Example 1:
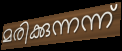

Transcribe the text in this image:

മരിക്കുന്നന്ന്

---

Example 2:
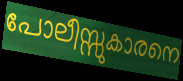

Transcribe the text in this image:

പോലീസ്സുകാരനെ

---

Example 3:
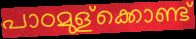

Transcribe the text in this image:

പാഠമുള്ക്കൊണ്ട്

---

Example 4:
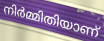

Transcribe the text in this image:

നിർമ്മിതിയാണ്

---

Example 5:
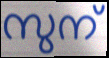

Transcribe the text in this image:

സുന്